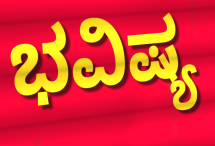
ಭವಿಷ್ಯ